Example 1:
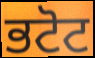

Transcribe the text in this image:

ਭਟੋਟ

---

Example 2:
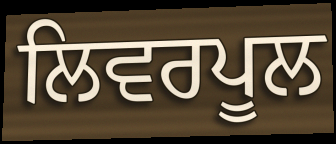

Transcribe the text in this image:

ਲਿਵਰਪੂਲ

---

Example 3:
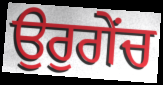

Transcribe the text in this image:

ਉਰੁਗੇਂਚ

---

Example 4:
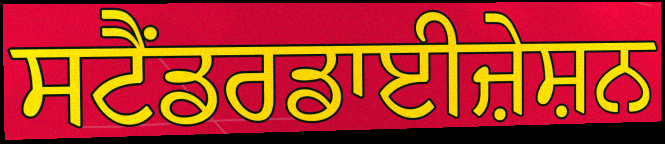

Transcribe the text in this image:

ਸਟੈਂਡਰਡਾਈਜ਼ੇਸ਼ਨ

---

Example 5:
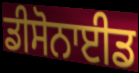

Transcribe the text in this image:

ਡੀਸੋਨਾਈਡ